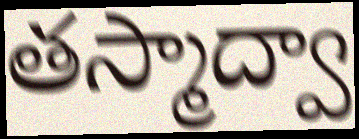
తస్మాద్వా